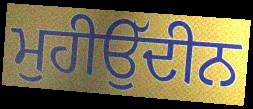
ਮੁਹੀਉੱਦੀਨ